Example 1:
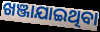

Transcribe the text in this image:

ଖଞ୍ଜାଯାଇଥିବା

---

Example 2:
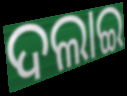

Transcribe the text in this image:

ଦଲାଇ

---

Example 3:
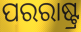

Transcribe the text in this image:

ପରରାଷ୍ଟ୍ର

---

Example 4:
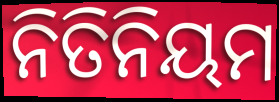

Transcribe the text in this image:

ନିତିନିୟମ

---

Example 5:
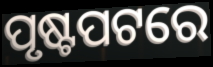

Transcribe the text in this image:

ପୃଷ୍ଟପଟରେ